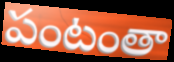
పంటంతా